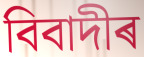
বিবাদীৰ